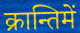
क्रान्तिमें